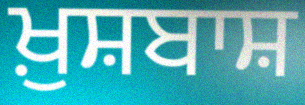
ਖ਼ੁਸ਼ਬਾਸ਼